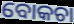
ବୋକଚା